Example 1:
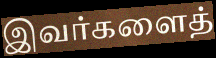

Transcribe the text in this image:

இவர்களைத்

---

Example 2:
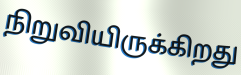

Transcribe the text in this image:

நிறுவியிருக்கிறது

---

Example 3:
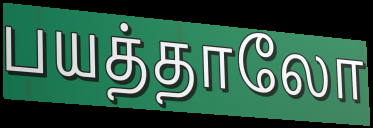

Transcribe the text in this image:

பயத்தாலோ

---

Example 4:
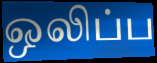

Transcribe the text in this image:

ஒலிப்ப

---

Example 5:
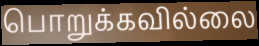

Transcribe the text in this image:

பொறுக்கவில்லை